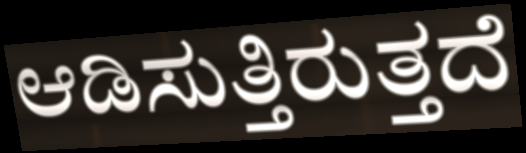
ಆಡಿಸುತ್ತಿರುತ್ತದೆ